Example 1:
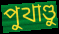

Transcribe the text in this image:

পুথাণ্ডু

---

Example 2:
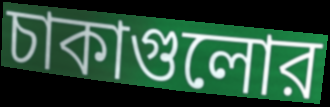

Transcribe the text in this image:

চাকাগুলোর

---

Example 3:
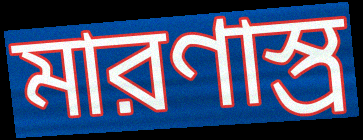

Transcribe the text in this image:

মারণাস্ত্র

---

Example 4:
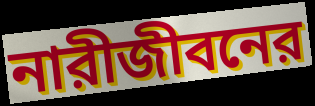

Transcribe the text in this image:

নারীজীবনের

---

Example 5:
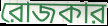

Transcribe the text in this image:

রোজকার